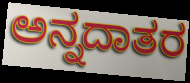
ಅನ್ನದಾತರ